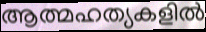
ആത്മഹത്യകളിൽ